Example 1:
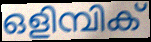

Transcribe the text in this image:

ഒളിമ്പിക്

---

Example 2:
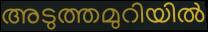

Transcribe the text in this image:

അടുത്തമുറിയിൽ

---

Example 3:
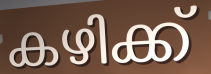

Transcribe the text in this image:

കഴിക്ക്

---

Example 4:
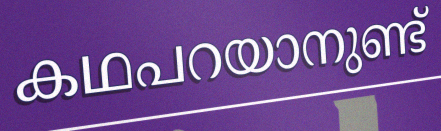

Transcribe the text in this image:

കഥപറയാനുണ്ട്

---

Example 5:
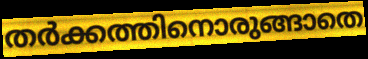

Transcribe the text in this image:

തർക്കത്തിനൊരുങ്ങാതെ